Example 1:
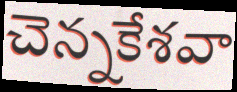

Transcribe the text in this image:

చెన్నకేశవా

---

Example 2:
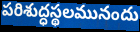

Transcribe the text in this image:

పరిశుద్ధస్థలమునందు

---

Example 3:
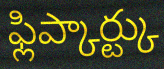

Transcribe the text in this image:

ఫ్లిప్కార్ట్కు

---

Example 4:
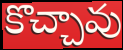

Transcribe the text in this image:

కొచ్చావు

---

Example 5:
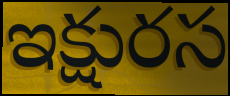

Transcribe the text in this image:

ఇక్షురస